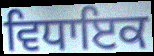
ਵਿਧਾਇਕ